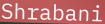
Shrabani